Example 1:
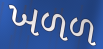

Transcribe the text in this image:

ખળળ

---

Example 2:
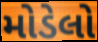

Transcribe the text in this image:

મોડેલો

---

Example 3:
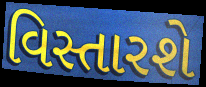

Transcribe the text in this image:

વિસ્તારશે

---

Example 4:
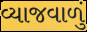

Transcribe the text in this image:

વ્યાજવાળું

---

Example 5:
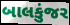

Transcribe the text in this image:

બાલકુંજર